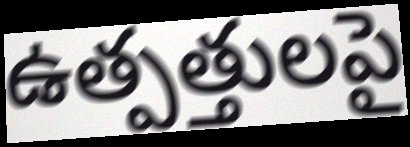
ఉత్పత్తులపై